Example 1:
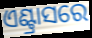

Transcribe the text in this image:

ଏଣ୍ଟ୍ରାସରେ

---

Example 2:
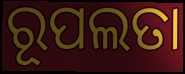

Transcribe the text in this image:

ରୂପଲତା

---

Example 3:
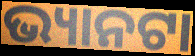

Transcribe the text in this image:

ଭ୍ୟାନଟା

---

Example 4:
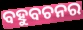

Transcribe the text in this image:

ବହୁବଚନର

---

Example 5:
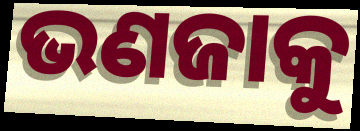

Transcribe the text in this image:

ଭଣଜାକୁ